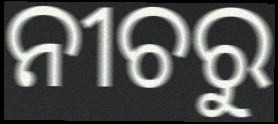
ନୀଚରୁ